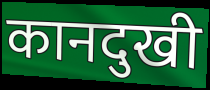
कानदुखी